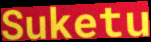
Suketu